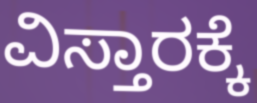
ವಿಸ್ತಾರಕ್ಕೆ